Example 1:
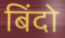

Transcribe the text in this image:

बिंदो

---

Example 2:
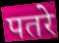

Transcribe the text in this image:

पतरे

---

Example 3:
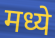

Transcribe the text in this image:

मध्ये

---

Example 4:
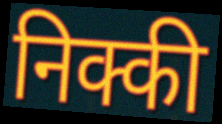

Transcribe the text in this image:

निक्की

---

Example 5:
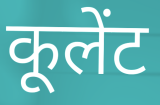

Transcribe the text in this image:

कूलेंट